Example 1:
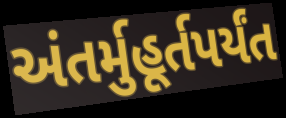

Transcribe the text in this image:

અંતર્મુહૂર્તપર્યંત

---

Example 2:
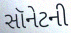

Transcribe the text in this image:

સૉનેટની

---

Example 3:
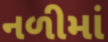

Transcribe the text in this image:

નળીમાં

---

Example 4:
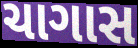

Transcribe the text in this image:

ચાગાસ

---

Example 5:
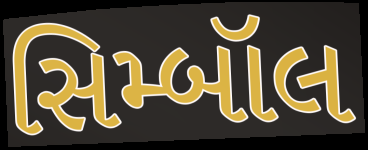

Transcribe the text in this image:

સિમ્બૉલ